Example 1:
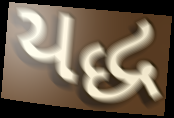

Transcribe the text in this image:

યદ્ધ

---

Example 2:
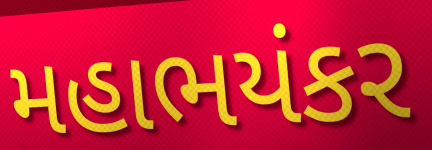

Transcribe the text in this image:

મહાભયંકર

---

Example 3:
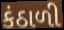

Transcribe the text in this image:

કંઠાળી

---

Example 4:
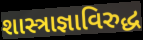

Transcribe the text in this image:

શાસ્ત્રાજ્ઞાવિરુદ્ધ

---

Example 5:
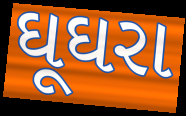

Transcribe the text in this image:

ઘૂઘરા